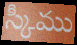
స్కీము